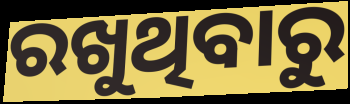
ରଖୁଥିବାରୁ